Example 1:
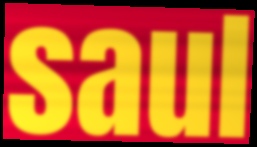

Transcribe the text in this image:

saul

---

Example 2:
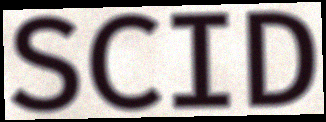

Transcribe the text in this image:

SCID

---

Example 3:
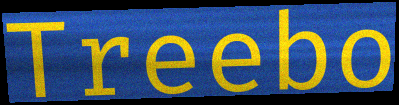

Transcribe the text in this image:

Treebo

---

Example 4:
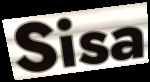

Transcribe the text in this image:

Sisa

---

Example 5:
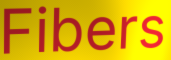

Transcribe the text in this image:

Fibers